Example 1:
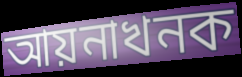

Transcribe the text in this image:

আয়নাখনক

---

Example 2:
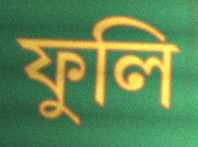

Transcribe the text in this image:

ফুলি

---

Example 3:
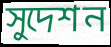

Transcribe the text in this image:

সুদেশন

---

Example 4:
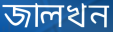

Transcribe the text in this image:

জালখন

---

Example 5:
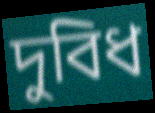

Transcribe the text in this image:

দুবিধ